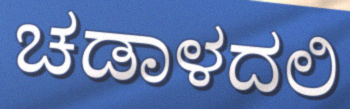
ಚಡಾಳದಲಿ